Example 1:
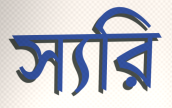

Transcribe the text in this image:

স্যরি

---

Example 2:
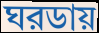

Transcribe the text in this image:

ঘরডায়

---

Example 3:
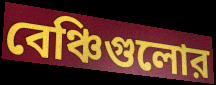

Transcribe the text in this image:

বেঞ্চিগুলোর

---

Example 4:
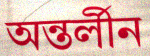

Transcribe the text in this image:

অন্তর্লীন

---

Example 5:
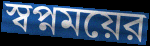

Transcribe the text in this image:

স্বপ্নময়ের